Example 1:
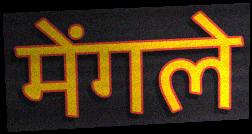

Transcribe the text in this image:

मेंगले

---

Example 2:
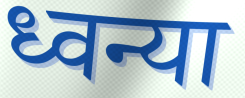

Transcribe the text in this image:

ध्वन्या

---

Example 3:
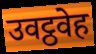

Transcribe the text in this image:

उवट्ठवेह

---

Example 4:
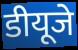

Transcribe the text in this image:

डीयूजे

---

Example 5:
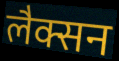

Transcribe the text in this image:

लैक्सन